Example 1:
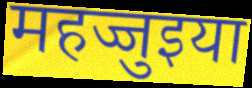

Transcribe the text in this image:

महज्जुइया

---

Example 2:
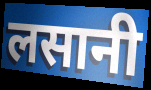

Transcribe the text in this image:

लसानी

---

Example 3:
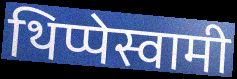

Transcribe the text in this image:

थिप्पेस्वामी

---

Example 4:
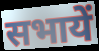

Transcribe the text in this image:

सभायें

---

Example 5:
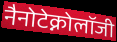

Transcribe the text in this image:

नैनोटेक्नोलॉजी